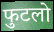
फुटलो